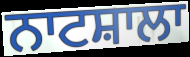
ਨਾਟਸ਼ਾਲਾ